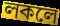
লকলে